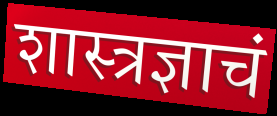
शास्त्रज्ञाचं